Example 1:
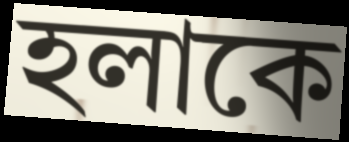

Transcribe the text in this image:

হলাকে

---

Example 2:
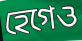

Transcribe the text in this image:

হেগেও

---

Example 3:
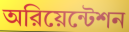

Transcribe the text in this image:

অরিয়েন্টেশন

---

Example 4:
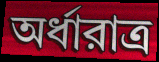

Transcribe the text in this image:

অর্ধারাত্র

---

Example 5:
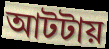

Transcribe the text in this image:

আটটায়